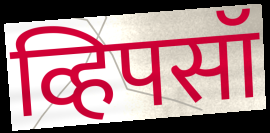
व्हिपसॉ